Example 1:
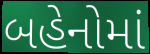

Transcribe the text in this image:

બહેનોમાં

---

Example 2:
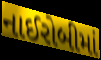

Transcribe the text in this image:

નાઈરોબીમાં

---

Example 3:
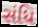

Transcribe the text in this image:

સંધિ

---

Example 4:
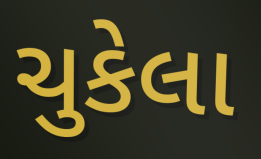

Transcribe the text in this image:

ચુકેલા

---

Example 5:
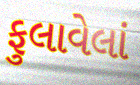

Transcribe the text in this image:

ફુલાવેલાં